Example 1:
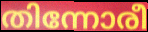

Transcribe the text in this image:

തിന്നോരീ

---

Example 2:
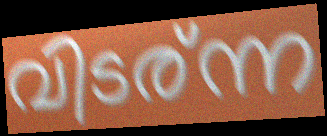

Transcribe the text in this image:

വിടര്ന്ന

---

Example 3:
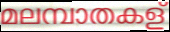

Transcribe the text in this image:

മലമ്പാതകള്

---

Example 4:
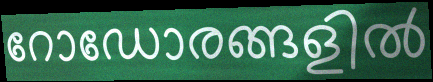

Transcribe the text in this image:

റോഡോരങ്ങളിൽ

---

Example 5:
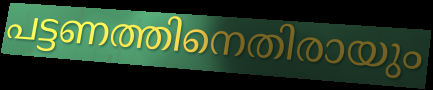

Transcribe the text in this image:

പട്ടണത്തിനെതിരായും